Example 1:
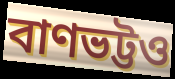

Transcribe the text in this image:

বাণভট্টও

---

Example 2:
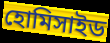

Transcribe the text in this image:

হোমিসাইড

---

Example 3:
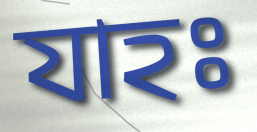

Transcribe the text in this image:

যাহঃ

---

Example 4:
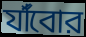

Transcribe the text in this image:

র্যাঁবোর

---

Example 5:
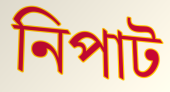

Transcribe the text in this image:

নিপাট